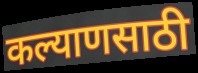
कल्याणसाठी